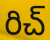
రిచ్